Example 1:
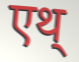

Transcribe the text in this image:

एथ्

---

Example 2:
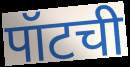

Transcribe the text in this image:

पॉटची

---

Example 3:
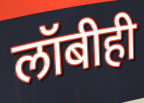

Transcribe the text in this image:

लॉबीही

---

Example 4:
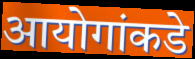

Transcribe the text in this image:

आयोगांकडे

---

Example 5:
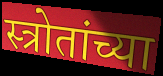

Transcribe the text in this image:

स्त्रोतांच्या